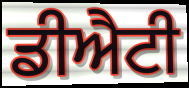
ਡੀਐਟੀ